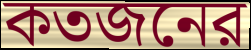
কতজনের